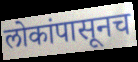
लोकांपासूनच